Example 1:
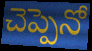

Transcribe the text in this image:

చెప్పెనో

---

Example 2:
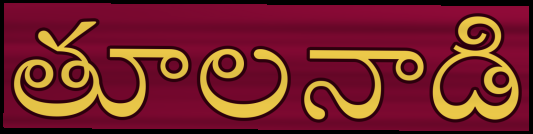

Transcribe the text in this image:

తూలనాడి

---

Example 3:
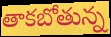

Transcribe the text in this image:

తాకబోతున్న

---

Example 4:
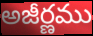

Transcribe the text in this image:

అజీర్ణము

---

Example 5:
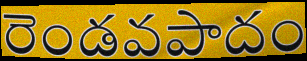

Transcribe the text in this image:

రెండవపాదం